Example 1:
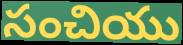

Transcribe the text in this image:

సంచియు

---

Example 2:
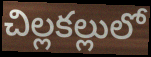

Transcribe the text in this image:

చిల్లకల్లులో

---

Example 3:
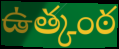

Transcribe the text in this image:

ఉత్కంఠ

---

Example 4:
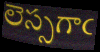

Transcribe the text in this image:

లెస్సగాఁ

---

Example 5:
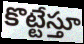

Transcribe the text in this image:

కొట్టేస్తూ